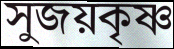
সুজয়কৃষ্ণ